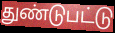
துண்டுபட்டு